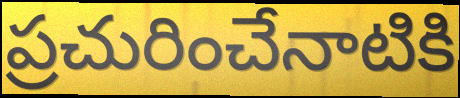
ప్రచురించేనాటికి